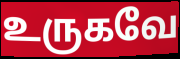
உருகவே